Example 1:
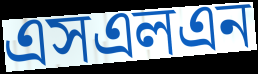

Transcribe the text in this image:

এসএলএন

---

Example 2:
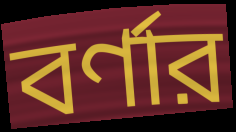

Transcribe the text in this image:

বর্ণার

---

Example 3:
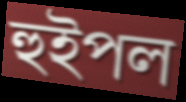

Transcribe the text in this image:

হুইপল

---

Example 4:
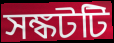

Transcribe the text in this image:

সঙ্কটটি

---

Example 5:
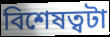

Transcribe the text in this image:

বিশেষত্বটা